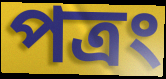
পত্রং